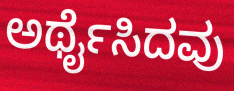
ಅರ್ಥೈಸಿದವು